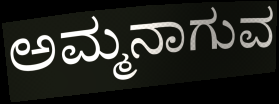
ಅಮ್ಮನಾಗುವ